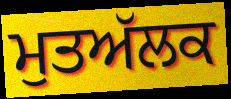
ਮੁਤਅੱਲਕ